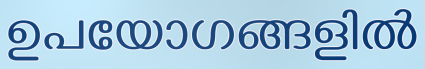
ഉപയോഗങ്ങളിൽ